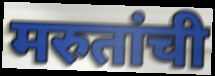
मरुतांची